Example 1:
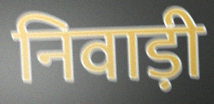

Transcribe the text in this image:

निवाड़ी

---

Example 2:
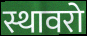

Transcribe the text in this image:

स्थावरो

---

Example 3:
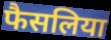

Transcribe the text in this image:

फैसलिया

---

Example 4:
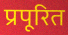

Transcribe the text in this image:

प्रपूरित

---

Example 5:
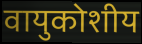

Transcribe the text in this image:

वायुकोशीय